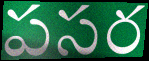
పసర